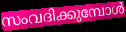
സംവദിക്കുമ്പോൾ